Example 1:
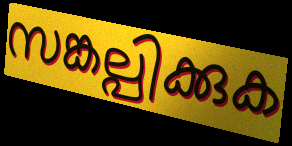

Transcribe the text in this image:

സങ്കല്പിക്കുക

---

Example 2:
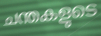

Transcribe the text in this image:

ചന്തകളുടെ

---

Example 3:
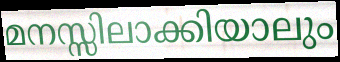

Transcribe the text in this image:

മനസ്സിലാക്കിയാലും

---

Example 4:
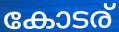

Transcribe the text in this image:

കോടര്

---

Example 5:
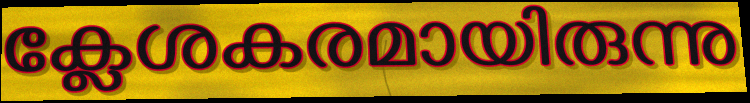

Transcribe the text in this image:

ക്ലേശകരമായിരുന്നു